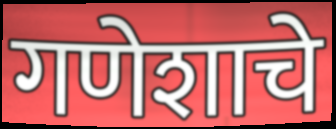
गणेशाचे